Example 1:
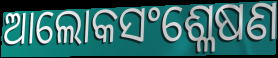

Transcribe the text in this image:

ଆଲୋକସଂଶ୍ଳେଷଣ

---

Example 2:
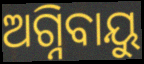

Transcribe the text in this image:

ଅଗ୍ନିବାୟୁ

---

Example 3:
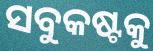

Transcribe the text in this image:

ସବୁକଷ୍ଟକୁ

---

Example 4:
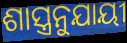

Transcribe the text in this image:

ଶାସ୍ତ୍ରନୁଯାୟୀ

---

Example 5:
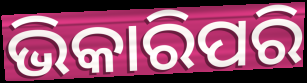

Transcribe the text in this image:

ଭିକାରିପରି